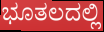
ಭೂತಲದಲ್ಲಿ